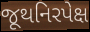
જૂથનિરપેક્ષ